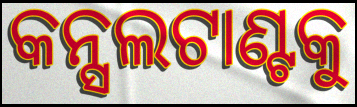
କନ୍ସଲଟାଣ୍ଟକୁ